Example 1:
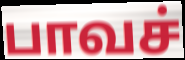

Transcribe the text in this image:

பாவச்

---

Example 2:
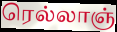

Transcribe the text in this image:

ரெல்லாஞ்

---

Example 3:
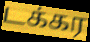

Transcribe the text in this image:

டக்கர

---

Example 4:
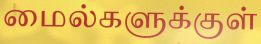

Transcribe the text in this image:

மைல்களுக்குள்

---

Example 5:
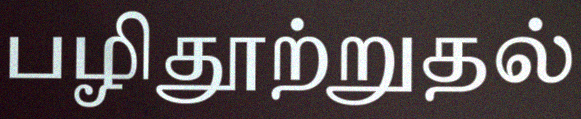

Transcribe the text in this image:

பழிதூற்றுதல்